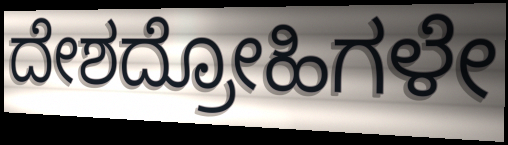
ದೇಶದ್ರೋಹಿಗಳೇ